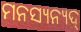
ମନସ୍ୟନ୍ୟଦ୍